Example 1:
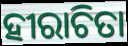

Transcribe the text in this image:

ହୀରାଚିତା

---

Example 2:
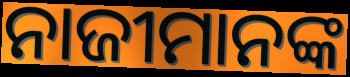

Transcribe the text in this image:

ନାଜୀମାନଙ୍କ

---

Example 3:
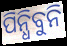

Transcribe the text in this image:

ପିନ୍ଧିବୁନି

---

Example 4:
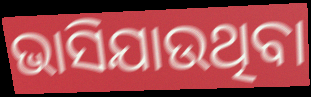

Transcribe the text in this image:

ଭାସିଯାଉଥିବା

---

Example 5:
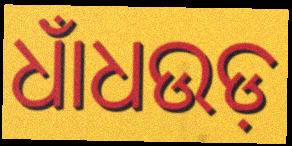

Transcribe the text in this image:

ଧାଁଧଉଡ଼